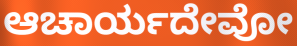
ಆಚಾರ್ಯದೇವೋ